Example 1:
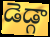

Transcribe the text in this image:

డెడ్గా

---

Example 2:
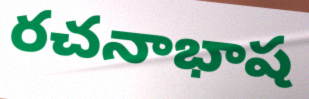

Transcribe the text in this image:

రచనాభాష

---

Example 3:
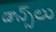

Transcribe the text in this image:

డాన్స్‌లు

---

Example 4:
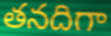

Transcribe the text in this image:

తనదిగా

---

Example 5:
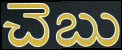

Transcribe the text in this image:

చెబు